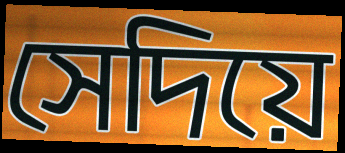
সেদিয়ে